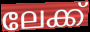
ലേക്ക്